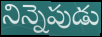
నిన్నెపుడు